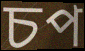
চপ